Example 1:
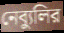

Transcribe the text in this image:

নেব্যুলির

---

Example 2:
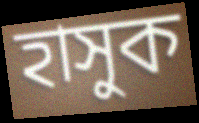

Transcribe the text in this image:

হাসুক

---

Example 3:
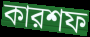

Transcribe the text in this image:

কারশফ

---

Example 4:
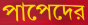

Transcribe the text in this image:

পাপেদের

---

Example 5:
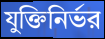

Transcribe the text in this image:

যুক্তিনির্ভর